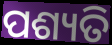
ପଶ୍ୟତି